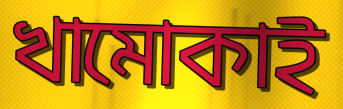
খামোকাই